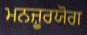
ਮਨਜ਼ੂਰਯੋਗ